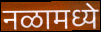
नळामध्ये